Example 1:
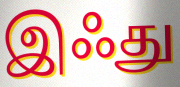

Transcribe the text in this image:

இஃது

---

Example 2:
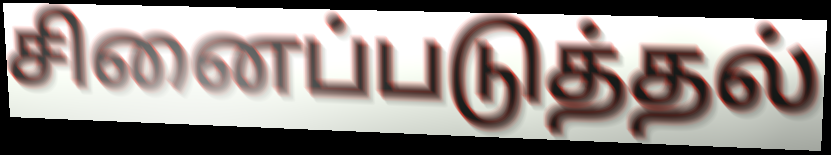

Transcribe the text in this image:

சினைப்படுத்தல்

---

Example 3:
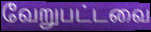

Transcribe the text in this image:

வேறுபட்டவை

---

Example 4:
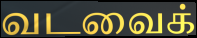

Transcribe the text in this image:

வடவைக்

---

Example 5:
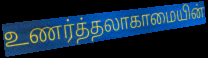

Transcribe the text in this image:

உணர்த்தலாகாமையின்